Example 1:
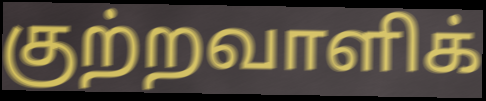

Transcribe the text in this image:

குற்றவாளிக்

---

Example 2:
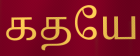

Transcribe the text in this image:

கதயே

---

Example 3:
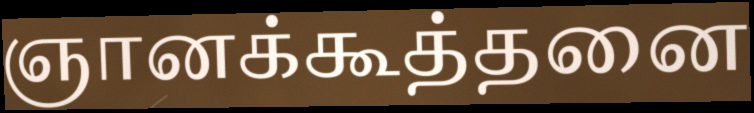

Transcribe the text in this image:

ஞானக்கூத்தனை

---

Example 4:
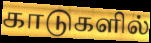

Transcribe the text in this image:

காடுகளில்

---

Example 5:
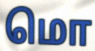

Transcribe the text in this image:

மொ